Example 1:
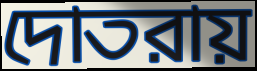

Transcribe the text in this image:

দোতরায়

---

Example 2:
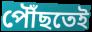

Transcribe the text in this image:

পৌঁছতেই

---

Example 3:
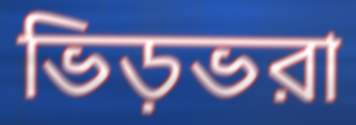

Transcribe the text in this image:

ভিড়ভরা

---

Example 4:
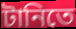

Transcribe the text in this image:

টানিতে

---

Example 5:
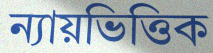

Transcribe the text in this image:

ন্যায়ভিত্তিক